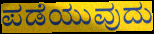
ಪಡೆಯುವುದು